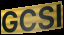
GCSI